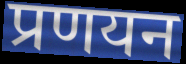
प्रणयन